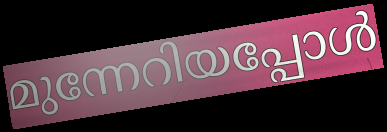
മുന്നേറിയപ്പോൾ